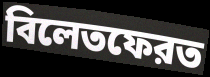
বিলেতফেরত